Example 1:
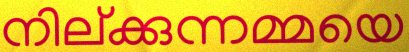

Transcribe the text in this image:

നില്ക്കുന്നമ്മയെ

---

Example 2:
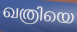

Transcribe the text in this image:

ഖത്രിയെ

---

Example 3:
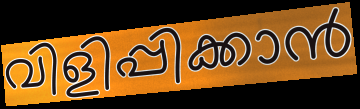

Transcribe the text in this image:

വിളിപ്പിക്കാൻ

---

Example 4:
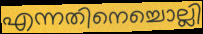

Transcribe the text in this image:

എന്നതിനെച്ചൊല്ലി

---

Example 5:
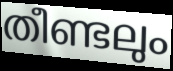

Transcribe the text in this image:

തീണ്ടലും